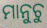
ମାନୁଚୁ